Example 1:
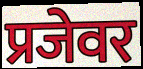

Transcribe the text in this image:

प्रजेवर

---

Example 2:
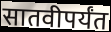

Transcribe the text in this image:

सातवीपर्यंत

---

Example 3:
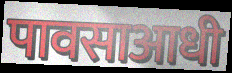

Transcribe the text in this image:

पावसाआधी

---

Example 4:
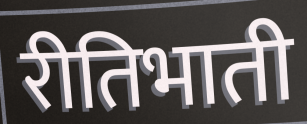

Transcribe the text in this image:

रीतिभाती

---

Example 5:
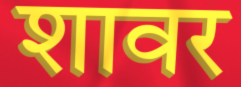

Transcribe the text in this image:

शावर